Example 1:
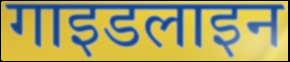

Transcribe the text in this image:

गाइडलाइन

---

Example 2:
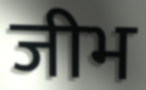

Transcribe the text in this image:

जीभ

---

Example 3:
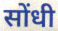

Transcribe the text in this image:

सोंधी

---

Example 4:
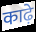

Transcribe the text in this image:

काढ़े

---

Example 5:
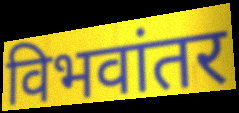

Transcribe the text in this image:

विभवांतर